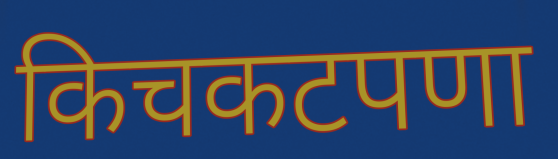
किचकटपणा